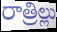
రాత్రిల్లు